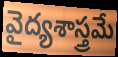
వైద్యశాస్త్రమే